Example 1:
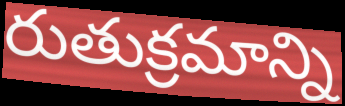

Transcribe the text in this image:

రుతుక్రమాన్ని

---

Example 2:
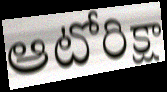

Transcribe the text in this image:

ఆటోరిక్షా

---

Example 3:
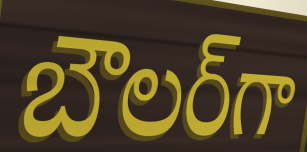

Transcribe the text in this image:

బౌలర్‌గా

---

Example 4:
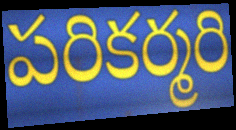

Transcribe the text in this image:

పరికర్మరి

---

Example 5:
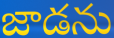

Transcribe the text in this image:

జాడను